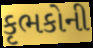
કૃભકોની